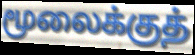
மூலைக்குத்